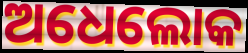
ଅଧେଲୋକ